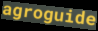
agroguide